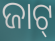
ଜାଟ୍